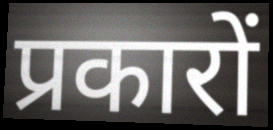
प्रकारों